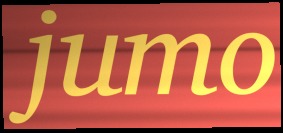
jumo